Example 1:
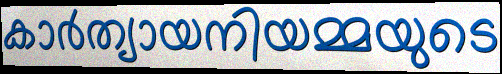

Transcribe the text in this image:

കാർത്യായനിയമ്മയുടെ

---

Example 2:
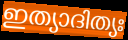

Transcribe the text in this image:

ഇത്യാദിത്യഃ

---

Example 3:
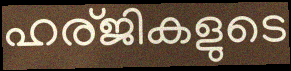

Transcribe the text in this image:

ഹര്ജികളുടെ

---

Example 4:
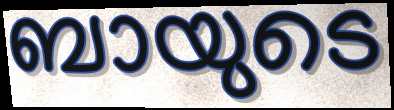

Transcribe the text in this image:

ബായുടെ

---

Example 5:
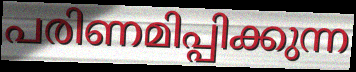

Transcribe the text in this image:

പരിണമിപ്പിക്കുന്ന